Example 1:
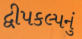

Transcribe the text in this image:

દ્વીપકલ્પનું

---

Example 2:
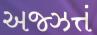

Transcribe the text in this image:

અજ્ઝત્તં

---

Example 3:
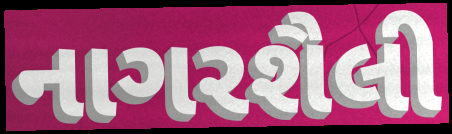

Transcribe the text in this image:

નાગરશૈલી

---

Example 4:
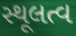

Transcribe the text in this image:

સ્થૂલત્વ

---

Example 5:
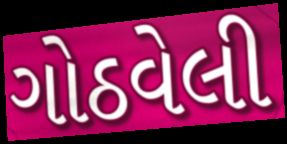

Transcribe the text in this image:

ગોઠવેલી